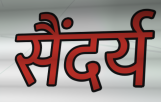
सैंदर्य